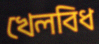
খেলবিধ